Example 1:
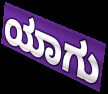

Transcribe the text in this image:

ಯಾಗು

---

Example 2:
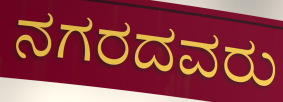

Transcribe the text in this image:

ನಗರದವರು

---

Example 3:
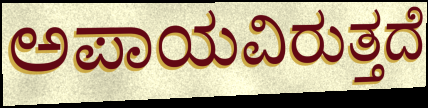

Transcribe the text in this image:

ಅಪಾಯವಿರುತ್ತದೆ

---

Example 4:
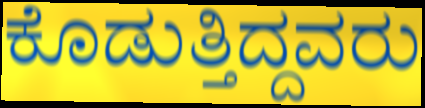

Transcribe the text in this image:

ಕೊಡುತ್ತಿದ್ದವರು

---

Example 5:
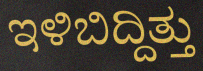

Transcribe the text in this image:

ಇಳಿಬಿದ್ದಿತ್ತು